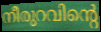
നീരുറവിന്റെ